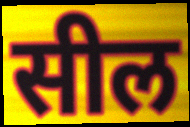
सील